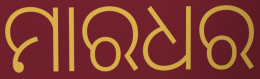
ମାରଧର